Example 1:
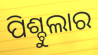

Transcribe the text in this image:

ପିଶ୍ଚୁଲାର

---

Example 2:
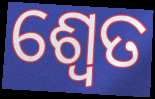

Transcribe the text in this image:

ଶ୍ଵେତ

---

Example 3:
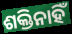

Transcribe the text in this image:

ଶକ୍ତିନାହିଁ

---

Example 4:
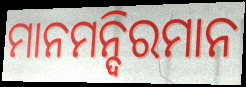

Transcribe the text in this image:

ମାନମନ୍ଦିରମାନ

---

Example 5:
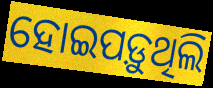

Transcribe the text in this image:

ହୋଇପଡ଼ୁଥିଲି